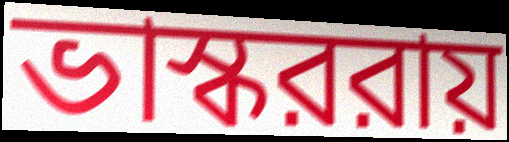
ভাস্কররায়